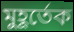
মুহূর্তেক